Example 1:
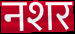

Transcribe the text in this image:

नशर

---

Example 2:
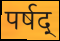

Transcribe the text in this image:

पर्षद्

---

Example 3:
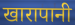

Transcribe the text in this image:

खारापानी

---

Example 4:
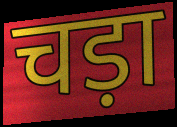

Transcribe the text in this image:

चड़ा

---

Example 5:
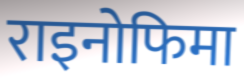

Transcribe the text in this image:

राइनोफिमा